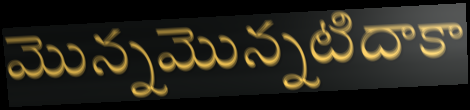
మొన్నమొన్నటిదాకా